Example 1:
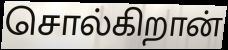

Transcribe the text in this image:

சொல்கிறான்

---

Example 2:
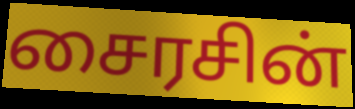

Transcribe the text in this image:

சைரசின்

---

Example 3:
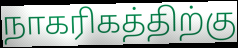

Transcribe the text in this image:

நாகரிகத்திற்கு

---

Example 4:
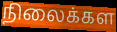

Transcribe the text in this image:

நிலைக்கள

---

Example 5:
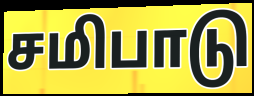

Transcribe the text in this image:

சமிபாடு